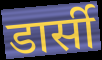
डार्सी